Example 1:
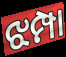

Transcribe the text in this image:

ଝମ୍ପା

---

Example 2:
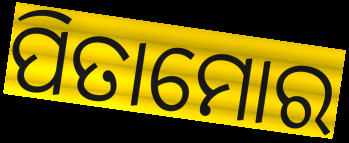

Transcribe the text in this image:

ପିତାମୋର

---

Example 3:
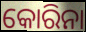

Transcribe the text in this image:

କୋରିନା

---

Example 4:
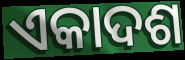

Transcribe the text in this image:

ଏକାଦଶ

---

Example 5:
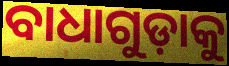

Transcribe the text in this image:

ବାଧାଗୁଡ଼ାକୁ